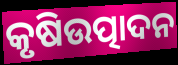
କୃଷିଉତ୍ପାଦନ